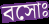
বসোঃ